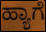
ಹ್ಯಾಗೆ